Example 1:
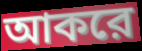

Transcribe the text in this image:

আকরে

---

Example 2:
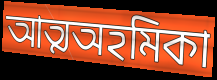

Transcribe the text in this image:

আত্মঅহমিকা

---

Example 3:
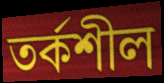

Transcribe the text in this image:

তর্কশীল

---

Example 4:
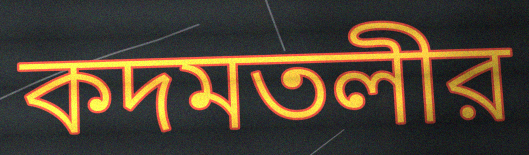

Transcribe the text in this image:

কদমতলীর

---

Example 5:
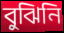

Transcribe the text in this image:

বুঝিনি